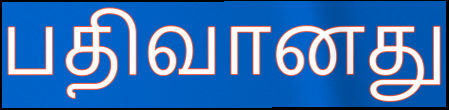
பதிவானது